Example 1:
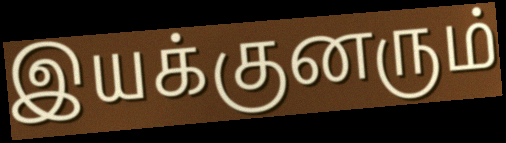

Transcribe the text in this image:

இயக்குனரும்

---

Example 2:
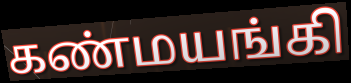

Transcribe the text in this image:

கண்மயங்கி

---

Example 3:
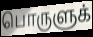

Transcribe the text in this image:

பொருளுக்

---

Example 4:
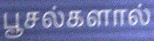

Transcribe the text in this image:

பூசல்களால்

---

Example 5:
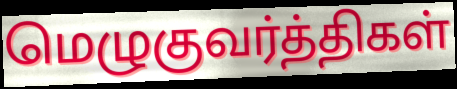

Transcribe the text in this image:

மெழுகுவர்த்திகள்